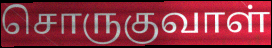
சொருகுவாள்